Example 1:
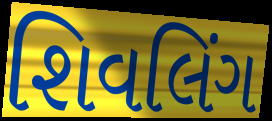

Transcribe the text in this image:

શિવલિંગ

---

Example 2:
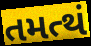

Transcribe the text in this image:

તમત્થં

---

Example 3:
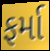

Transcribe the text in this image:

ફર્મા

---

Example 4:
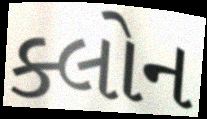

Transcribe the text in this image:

ક્લોન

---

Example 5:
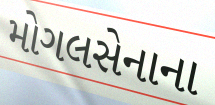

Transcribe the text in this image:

મોગલસેનાના